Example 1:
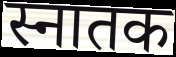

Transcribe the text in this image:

स्नातक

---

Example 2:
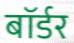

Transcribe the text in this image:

बॉर्डर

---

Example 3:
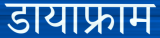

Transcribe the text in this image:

डायाफ्राम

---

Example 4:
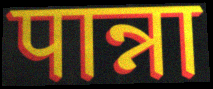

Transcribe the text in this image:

पान्ना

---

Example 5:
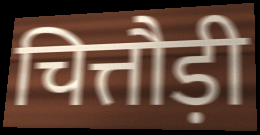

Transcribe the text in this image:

चित्तौड़ी